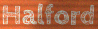
Halford